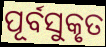
ପୂର୍ବସୁକୃତ